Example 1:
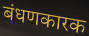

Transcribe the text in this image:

बंधणकारक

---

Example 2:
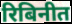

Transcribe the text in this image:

रिबिनीत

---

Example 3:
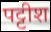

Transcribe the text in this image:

पट्टीश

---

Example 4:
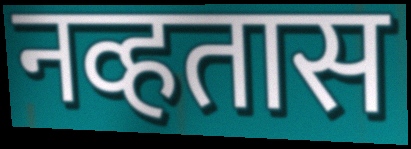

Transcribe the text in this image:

नव्हतास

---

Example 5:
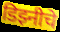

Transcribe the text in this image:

डिझ्नीचे